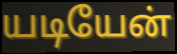
யடியேன்